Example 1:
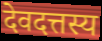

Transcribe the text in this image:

देवदत्तस्य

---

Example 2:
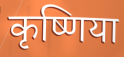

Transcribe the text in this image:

कृष्णिया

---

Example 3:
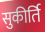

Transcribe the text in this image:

सुकीर्ति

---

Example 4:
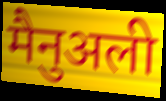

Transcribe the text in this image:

मैनुअली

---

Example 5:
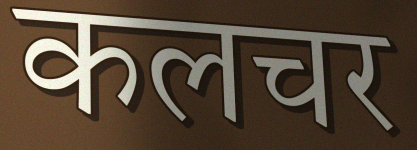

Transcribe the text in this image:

कलचर